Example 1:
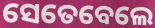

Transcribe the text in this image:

ସେତେବେଲେ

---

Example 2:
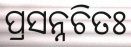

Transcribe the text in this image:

ପ୍ରସନ୍ନଚିତଃ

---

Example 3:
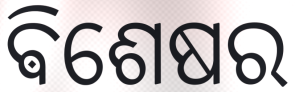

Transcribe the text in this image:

ଵିଶେଷର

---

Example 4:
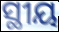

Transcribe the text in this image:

ସ୍ଥୀୟ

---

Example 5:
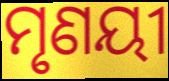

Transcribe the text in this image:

ମୃଣୟୀ